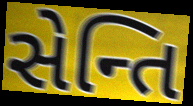
સેન્તિ